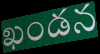
ఖండన